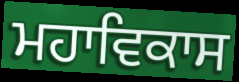
ਮਹਾਵਿਕਾਸ